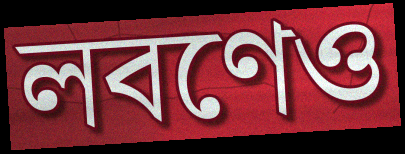
লবণেও